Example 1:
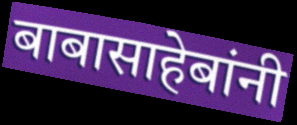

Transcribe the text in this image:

बाबासाहेबांनी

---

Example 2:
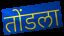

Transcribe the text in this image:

तोंडला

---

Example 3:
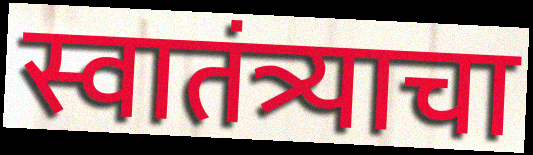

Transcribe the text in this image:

स्वातंत्र्याचा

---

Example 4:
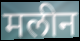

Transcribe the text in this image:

मलीन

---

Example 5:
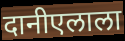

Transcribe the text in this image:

दानीएलाला